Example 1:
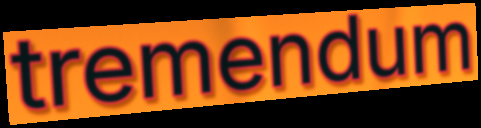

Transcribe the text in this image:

tremendum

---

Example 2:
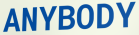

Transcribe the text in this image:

ANYBODY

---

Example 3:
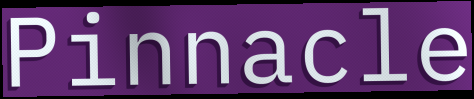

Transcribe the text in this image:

Pinnacle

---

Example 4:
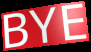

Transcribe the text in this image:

BYE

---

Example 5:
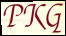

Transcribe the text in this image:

PKG